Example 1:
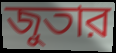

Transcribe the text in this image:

জুতার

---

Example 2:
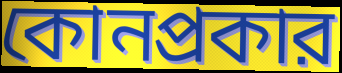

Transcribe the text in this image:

কোনপ্রকার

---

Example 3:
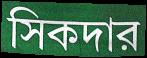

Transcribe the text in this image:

সিকদার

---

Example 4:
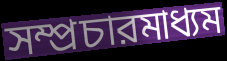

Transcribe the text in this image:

সম্প্রচারমাধ্যম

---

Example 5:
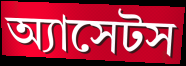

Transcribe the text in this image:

অ্যাসেটস